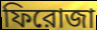
ফিরোজা